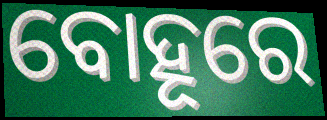
ବୋହୂରେ